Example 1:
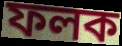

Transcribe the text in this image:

ফলক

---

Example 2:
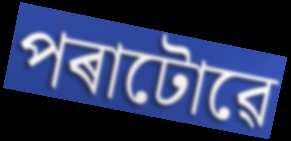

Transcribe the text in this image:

পৰাটোৱে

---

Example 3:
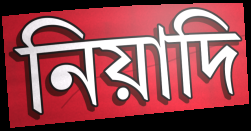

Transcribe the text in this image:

নিয়াদি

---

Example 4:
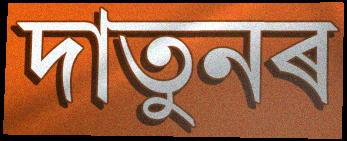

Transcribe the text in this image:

দাতুনৰ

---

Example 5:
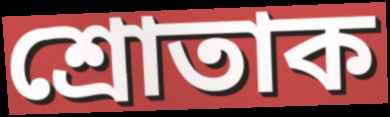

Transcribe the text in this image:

শ্ৰোতাক